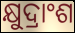
କ୍ଷୁଦ୍ରାଂଶ